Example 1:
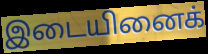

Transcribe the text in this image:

இடையினைக்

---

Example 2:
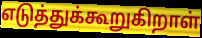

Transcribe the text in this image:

எடுத்துக்கூறுகிறாள்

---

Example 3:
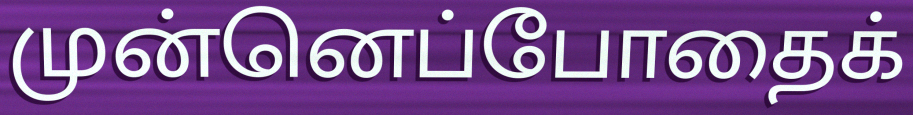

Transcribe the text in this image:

முன்னெப்போதைக்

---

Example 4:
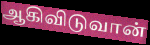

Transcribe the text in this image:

ஆகிவிடுவான்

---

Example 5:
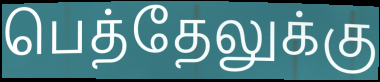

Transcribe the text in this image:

பெத்தேலுக்கு